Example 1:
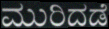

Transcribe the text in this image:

ಮುರಿದಡೆ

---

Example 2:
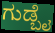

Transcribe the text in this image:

ಗುಡ್ಬೈ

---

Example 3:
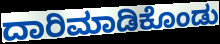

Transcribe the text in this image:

ದಾರಿಮಾಡಿಕೊಂಡು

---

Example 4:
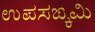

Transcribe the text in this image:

ಉಪಸಙ್ಕಮಿ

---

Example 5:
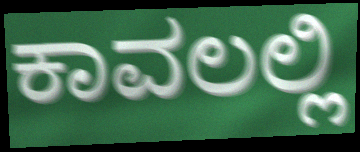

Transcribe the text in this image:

ಕಾವಲಲ್ಲಿ